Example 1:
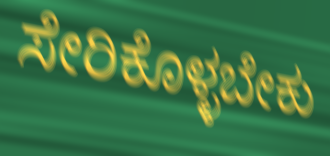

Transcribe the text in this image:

ಸೇರಿಕೊಳ್ಳಬೇಕು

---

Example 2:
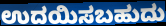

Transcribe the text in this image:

ಉದಯಿಸಬಹುದು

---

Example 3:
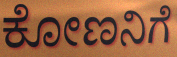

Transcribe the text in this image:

ಕೋಣನಿಗೆ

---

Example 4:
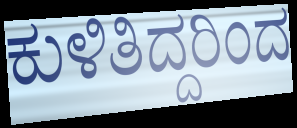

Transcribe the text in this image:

ಕುಳಿತಿದ್ದರಿಂದ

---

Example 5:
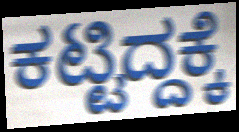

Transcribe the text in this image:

ಕಟ್ಟಿದ್ದಕ್ಕೆ